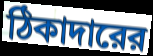
ঠিকাদারের